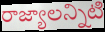
రాజ్యాలన్నిటి